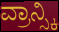
ವ್ರಾನ್ಸ್ಕಿ